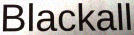
Blackall